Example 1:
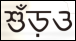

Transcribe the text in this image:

শুঁড়ও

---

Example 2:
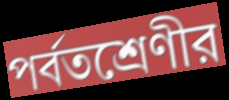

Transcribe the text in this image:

পর্বতশ্রেণীর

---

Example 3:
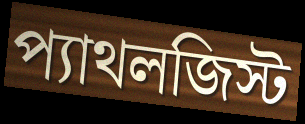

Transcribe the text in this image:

প্যাথলজিস্ট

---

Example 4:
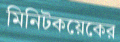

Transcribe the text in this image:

মিনিটকয়েকের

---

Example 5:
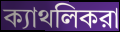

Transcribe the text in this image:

ক্যাথলিকরা